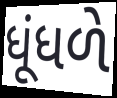
ધૂંધળે